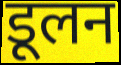
डूलन